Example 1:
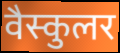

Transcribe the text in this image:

वैस्कुलर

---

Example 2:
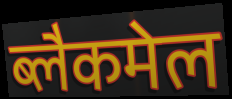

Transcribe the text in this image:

ब्लैकमेल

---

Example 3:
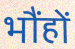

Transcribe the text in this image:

भौंहों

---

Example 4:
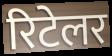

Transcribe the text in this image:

रिटेलर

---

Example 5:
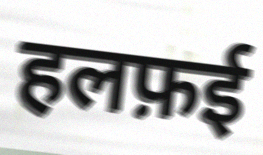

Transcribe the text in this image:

हलफ़ई